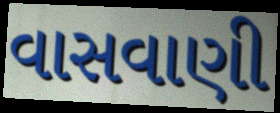
વાસવાણી